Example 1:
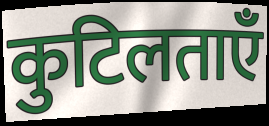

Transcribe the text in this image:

कुटिलताएँ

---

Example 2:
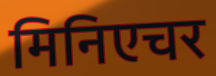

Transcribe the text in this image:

मिनिएचर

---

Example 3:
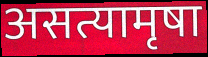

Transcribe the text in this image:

असत्यामृषा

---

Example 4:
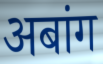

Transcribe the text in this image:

अबांग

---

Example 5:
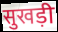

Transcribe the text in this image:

सुखड़ी